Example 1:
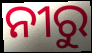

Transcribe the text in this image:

ନୀରୁ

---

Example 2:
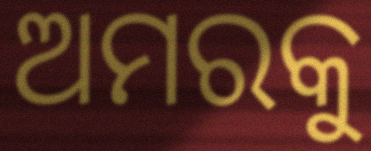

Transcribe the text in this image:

ଅମରକୁ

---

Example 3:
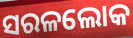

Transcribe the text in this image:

ସରଳଲୋକ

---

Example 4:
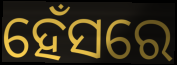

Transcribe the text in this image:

ହେଁସରେ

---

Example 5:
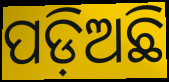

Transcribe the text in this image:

ପଡ଼ିଅଛି